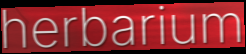
herbarium